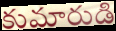
కుమారుడి